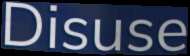
Disuse